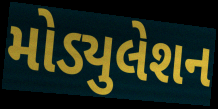
મોડ્યુલેશન